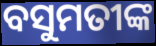
ବସୁମତୀଙ୍କ